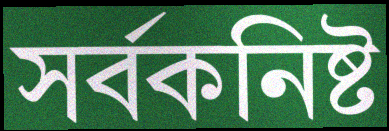
সর্বকনিষ্ট